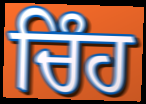
ਚਿੰਹ